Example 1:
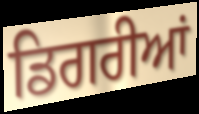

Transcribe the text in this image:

ਡਿਗਰੀਆਂ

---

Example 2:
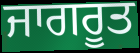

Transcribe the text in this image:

ਜਾਗਰੂਤ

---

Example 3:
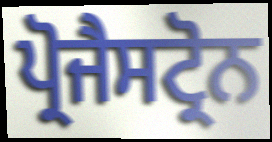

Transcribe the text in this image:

ਪ੍ਰੋਜੈਸਟ੍ਰੋਨ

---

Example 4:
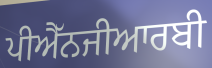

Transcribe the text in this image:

ਪੀਐੱਨਜੀਆਰਬੀ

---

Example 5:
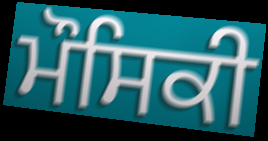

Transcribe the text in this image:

ਮੌਸਿਕੀ